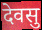
देवसु